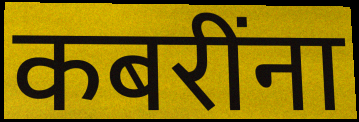
कबरींना